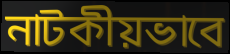
নাটকীয়ভাবে